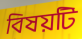
বিষয়টি